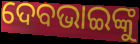
ଦେବଭାଇଙ୍କୁ